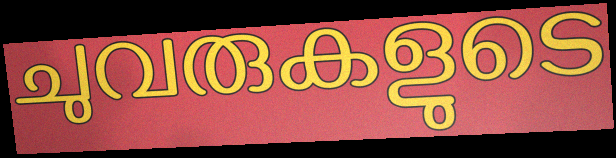
ചുവരുകളുടെ